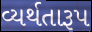
વ્યર્થતારૂપ